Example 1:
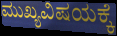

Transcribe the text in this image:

ಮುಖ್ಯವಿಷಯಕ್ಕೆ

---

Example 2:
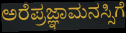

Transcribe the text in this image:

ಅರೆಪ್ರಜ್ಞಾಮನಸ್ಸಿಗೆ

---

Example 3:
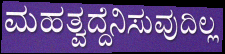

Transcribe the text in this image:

ಮಹತ್ವದ್ದೆನಿಸುವುದಿಲ್ಲ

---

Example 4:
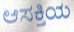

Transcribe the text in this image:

ಆಸಕ್ತಿಯ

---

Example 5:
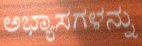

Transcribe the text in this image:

ಅಭ್ಯಾಸಗಳನ್ನು